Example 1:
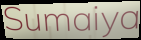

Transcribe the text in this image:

Sumaiya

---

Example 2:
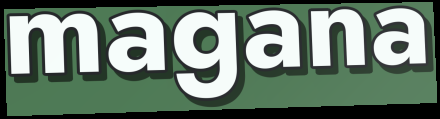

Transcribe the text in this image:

magana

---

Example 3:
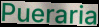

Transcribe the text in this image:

Pueraria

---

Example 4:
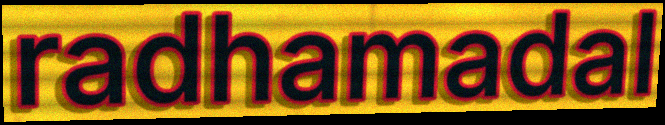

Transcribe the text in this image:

radhamadal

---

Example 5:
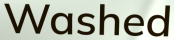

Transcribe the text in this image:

Washed